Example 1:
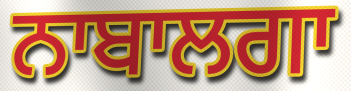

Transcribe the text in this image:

ਨਾਬਾਲਗਾ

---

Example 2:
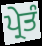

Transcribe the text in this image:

ਪ੍ਰੇਤੰ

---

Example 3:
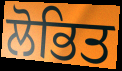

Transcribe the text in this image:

ਲੋਭਿਤ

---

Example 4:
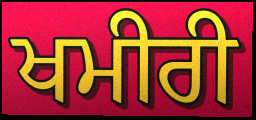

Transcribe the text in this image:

ਖਮੀਰੀ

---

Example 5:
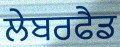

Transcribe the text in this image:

ਲੇਬਰਫੈਡ